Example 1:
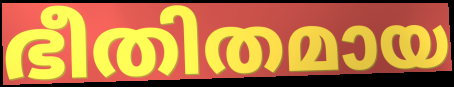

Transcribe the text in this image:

ഭീതിതമായ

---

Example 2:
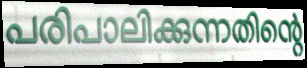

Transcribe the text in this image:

പരിപാലിക്കുന്നതിന്റെ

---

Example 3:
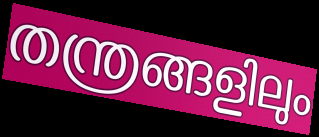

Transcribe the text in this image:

തന്ത്രങ്ങളിലും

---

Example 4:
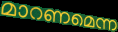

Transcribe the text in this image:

മാറണമെന്ന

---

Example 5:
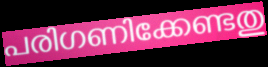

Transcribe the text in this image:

പരിഗണിക്കേണ്ടതു